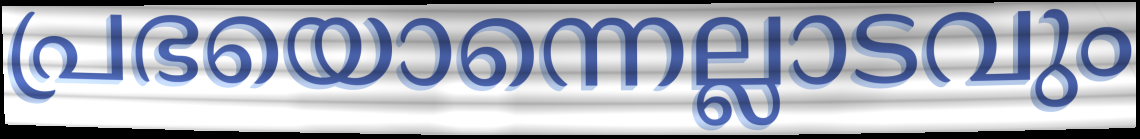
പ്രഭയൊന്നെല്ലാടവും